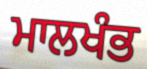
ਮਾਲਖੰਭ